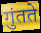
गुंतते